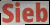
Sieb